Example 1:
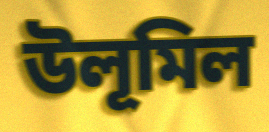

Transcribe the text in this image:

উলূমিল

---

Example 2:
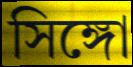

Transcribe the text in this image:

সিঙ্গো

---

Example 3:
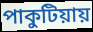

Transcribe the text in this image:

পাকুটিয়ায়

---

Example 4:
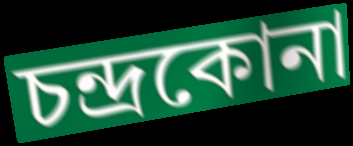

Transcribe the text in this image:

চন্দ্রকোনা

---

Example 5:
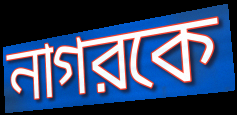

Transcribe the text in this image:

নাগরকে